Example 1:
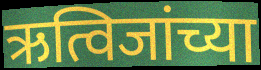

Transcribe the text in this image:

ऋत्विजांच्या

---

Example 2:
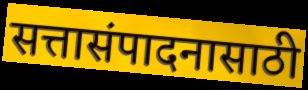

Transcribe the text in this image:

सत्तासंपादनासाठी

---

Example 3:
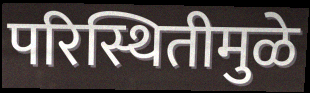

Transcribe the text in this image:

परिस्थितीमुळे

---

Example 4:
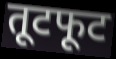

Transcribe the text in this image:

तूटफूट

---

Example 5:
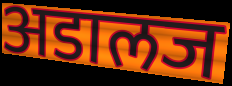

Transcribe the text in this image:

अडालज